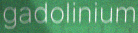
gadolinium